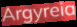
Argyreia